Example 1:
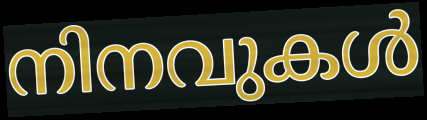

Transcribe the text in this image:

നിനവുകൾ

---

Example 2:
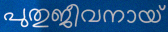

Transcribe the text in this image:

പുതുജീവനായ്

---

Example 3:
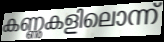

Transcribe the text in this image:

കണ്ണുകളിലൊന്ന്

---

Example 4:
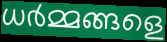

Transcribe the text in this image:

ധർമ്മങ്ങളെ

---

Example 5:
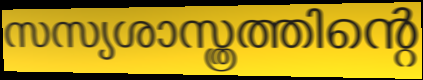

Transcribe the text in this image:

സസ്യശാസ്ത്രത്തിന്റെ